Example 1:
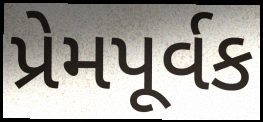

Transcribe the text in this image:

પ્રેમપૂર્વક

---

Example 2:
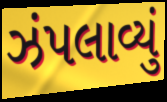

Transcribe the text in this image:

ઝંપલાવ્યું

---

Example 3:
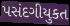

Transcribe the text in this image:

પસંદગીયુકત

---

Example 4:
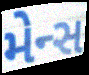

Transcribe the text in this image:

મેન્સ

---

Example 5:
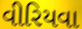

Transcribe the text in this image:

વીરિયવા